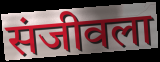
संजीवला